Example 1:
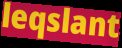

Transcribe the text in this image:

leqslant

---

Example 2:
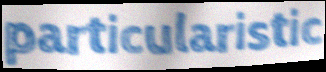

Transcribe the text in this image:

particularistic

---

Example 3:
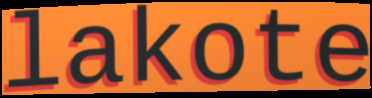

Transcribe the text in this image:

lakote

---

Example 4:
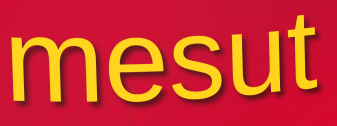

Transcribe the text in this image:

mesut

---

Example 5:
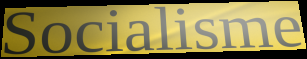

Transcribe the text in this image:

Socialisme